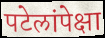
पटेलांपेक्षा